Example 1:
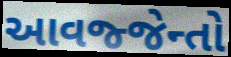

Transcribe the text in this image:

આવજ્જેન્તો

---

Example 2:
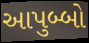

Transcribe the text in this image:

આપુબ્બો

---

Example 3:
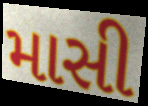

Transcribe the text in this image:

માસી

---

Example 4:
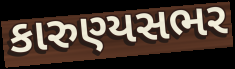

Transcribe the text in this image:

કારુણ્યસભર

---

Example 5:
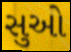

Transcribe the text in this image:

સુઓ